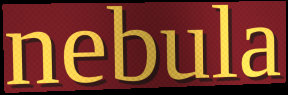
nebula